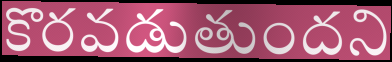
కొరవడుతుందని